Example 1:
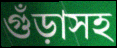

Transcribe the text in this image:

গুঁড়াসহ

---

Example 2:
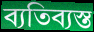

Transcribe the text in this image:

ব্যতিব্যস্ত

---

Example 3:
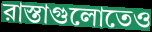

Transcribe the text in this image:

রাস্তাগুলোতেও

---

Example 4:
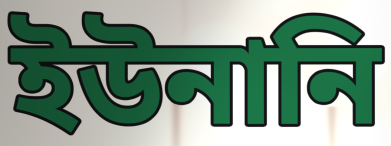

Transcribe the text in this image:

ইউনানি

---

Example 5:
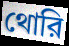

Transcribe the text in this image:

থোরি